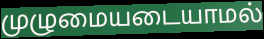
முழுமையடையாமல்